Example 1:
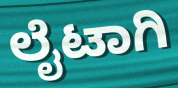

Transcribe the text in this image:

ಲೈಟಾಗಿ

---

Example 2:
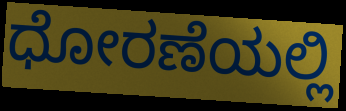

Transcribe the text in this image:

ಧೋರಣೆಯಲ್ಲಿ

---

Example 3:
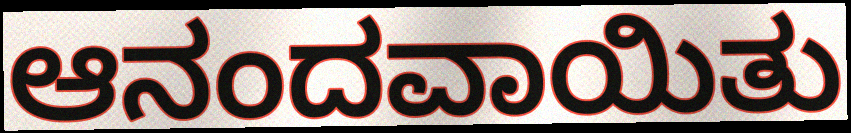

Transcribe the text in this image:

ಆನಂದವಾಯಿತು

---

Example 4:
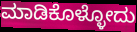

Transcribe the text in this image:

ಮಾಡಿಕೊಳ್ಳೋದು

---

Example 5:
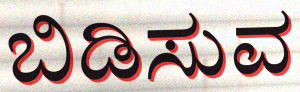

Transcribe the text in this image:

ಬಿಡಿಸುವ